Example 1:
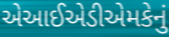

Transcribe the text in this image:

એઆઈએડીએમકેનું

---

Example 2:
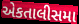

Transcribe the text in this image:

એકતાલીસમા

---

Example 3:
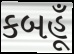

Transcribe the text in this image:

કબહૂઁ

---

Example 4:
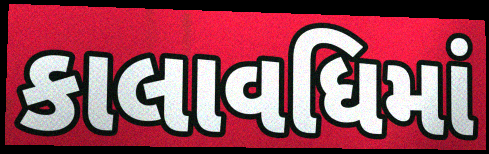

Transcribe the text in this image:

કાલાવધિમાં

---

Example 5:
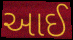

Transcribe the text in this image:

આઈ